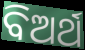
ବିଅର୍ଥ